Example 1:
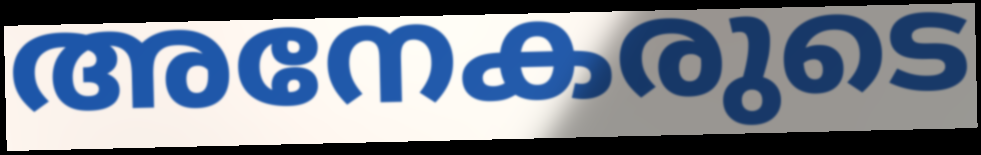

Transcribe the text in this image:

അനേകരുടെ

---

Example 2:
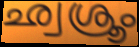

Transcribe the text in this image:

ഛ്വശ്രൂം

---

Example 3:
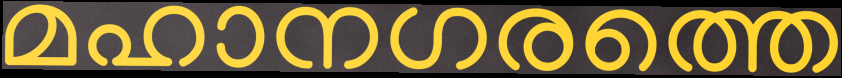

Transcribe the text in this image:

മഹാനഗരത്തെ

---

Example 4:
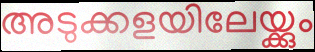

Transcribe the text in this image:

അടുക്കളയിലേയ്ക്കും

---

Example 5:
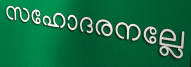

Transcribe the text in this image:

സഹോദരനല്ലേ